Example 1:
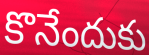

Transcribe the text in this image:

కొనేందుకు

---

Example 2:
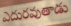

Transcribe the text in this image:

ఎదురవుతాడు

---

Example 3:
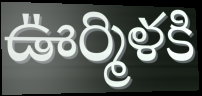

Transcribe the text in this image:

ఊర్మిళకి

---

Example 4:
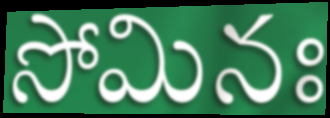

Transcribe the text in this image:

సోమినః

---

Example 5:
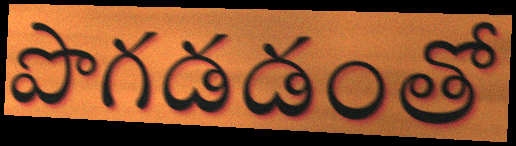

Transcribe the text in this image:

పొగడడంతో